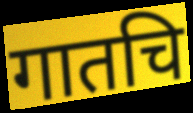
गातचि